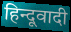
हिन्दूवादी